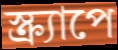
স্ক্র্যাপে